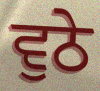
ਵੁਠੇ